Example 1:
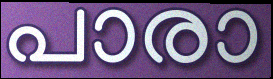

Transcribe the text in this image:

പാരാ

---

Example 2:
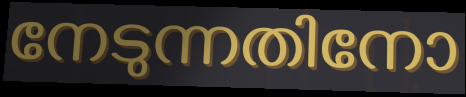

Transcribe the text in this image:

നേടുന്നതിനോ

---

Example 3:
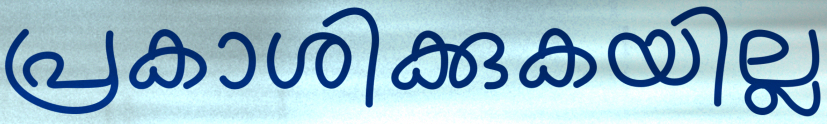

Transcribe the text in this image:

പ്രകാശിക്കുകയില്ല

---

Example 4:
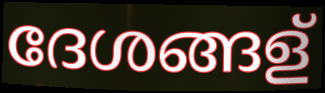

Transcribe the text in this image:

ദേശങ്ങള്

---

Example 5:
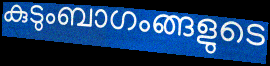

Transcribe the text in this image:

കുടുംബാഗംങ്ങളുടെ